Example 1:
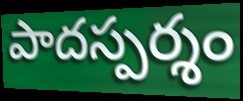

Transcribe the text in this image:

పాదస్పర్శం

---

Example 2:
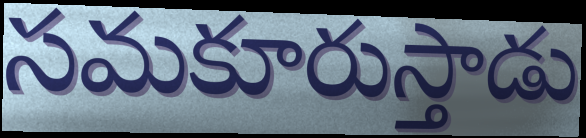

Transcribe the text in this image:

సమకూరుస్తాడు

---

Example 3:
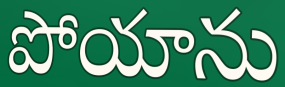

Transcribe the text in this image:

పోయాను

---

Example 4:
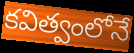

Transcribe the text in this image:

కవిత్వంలోనే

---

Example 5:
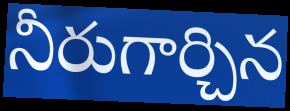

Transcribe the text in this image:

నీరుగార్చిన